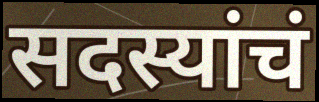
सदस्यांचं